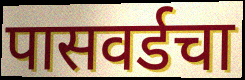
पासवर्डचा